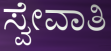
ಸ್ವೇವಾತಿ